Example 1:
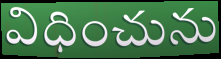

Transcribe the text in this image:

విధించును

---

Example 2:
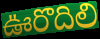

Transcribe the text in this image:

ఊరొదిలి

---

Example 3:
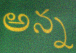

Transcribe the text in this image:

అన్న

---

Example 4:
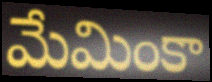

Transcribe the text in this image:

మేమింకా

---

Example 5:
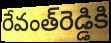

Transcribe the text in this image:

రేవంత్‌రెడ్డికి